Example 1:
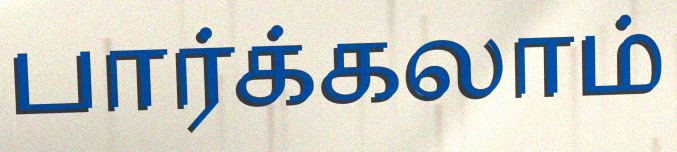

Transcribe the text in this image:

பார்க்கலாம்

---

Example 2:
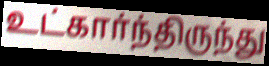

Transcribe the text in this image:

உட்கார்ந்திருந்து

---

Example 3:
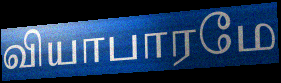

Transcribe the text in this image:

வியாபாரமே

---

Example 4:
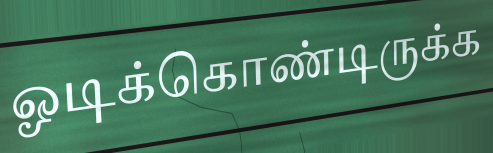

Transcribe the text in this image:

ஓடிக்கொண்டிருக்க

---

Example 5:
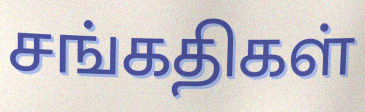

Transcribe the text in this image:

சங்கதிகள்